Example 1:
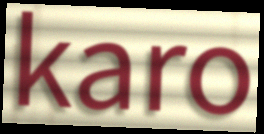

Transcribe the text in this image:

karo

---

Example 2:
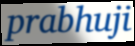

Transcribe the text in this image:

prabhuji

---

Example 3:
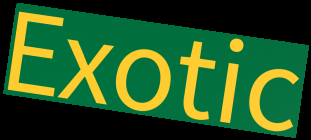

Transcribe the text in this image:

Exotic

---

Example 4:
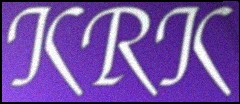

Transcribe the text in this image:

KRK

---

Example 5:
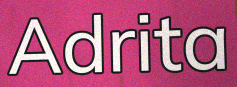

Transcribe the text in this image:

Adrita